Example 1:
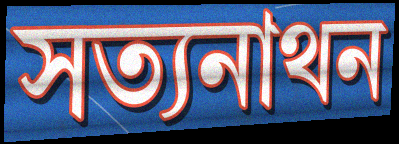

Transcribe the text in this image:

সত্যনাথন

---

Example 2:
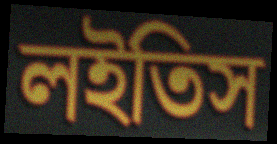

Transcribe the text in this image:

লইতিস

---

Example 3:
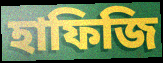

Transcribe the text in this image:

হাফিজি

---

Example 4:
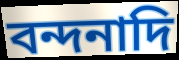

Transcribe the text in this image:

বন্দনাদি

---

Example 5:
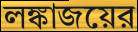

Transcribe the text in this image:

লঙ্কাজয়ের